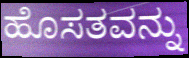
ಹೊಸತವನ್ನು